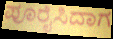
ಪೂರೈಸಿದಾಗ